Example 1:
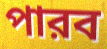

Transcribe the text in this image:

পারব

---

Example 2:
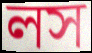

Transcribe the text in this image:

লস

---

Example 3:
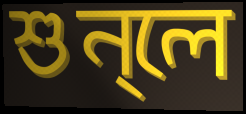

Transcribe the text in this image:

শুন্‌লে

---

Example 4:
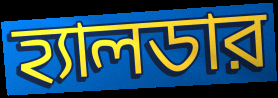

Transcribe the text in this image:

হ্যালডার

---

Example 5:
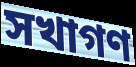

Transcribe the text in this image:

সখাগণ